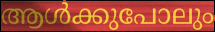
ആൾക്കുപോലും